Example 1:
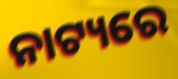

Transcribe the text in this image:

ନାଟ୍ୟରେ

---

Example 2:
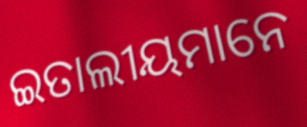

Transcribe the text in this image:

ଇତାଲୀୟମାନେ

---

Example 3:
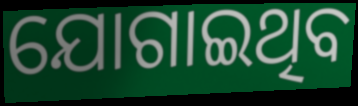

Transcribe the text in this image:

ଯୋଗାଇଥିବ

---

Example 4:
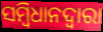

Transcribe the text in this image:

ସମ୍ବିଧାନଦ୍ବାରା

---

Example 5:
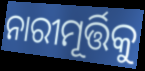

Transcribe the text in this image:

ନାରୀମୂର୍ତ୍ତିକୁ